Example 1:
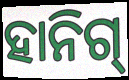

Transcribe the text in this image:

ହାନିଗ୍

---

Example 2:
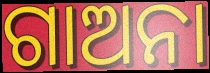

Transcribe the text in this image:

ଗାଅନା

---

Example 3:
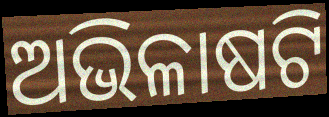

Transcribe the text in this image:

ଅଭିଳାଷଟି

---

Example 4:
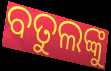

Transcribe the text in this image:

ବତୁଲଙ୍କୁ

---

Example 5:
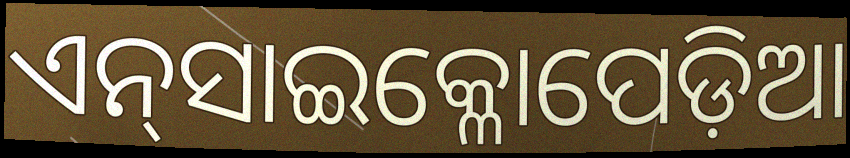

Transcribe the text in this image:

ଏନ୍‌ସାଇକ୍ଳୋପେଡ଼ିଆ